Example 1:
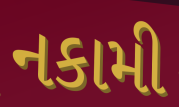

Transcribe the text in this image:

નકામી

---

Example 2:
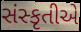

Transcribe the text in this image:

સંસ્કૃતીએ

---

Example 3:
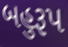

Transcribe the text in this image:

બહુરૂપ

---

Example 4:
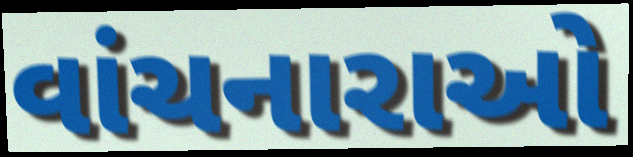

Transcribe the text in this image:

વાંચનારાઓ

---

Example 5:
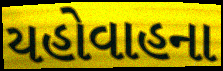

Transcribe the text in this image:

યહોવાહના